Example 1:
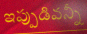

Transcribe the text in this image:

ఇప్పుడివన్నీ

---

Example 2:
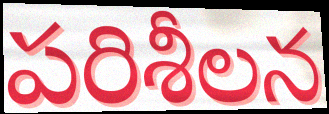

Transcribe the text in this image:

పరిశీలన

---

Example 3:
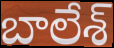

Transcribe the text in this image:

బాలేశ్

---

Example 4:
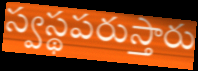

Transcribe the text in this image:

స్వస్థపరుస్తారు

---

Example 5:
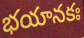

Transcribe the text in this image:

భయానకః